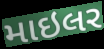
માઇલર